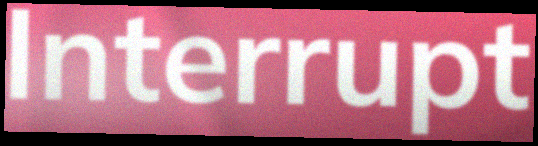
Interrupt